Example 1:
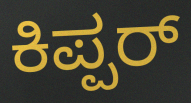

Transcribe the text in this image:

ಕಿಪ್ಪರ್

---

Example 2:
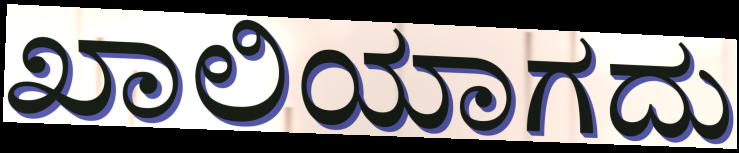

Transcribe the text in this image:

ಖಾಲಿಯಾಗದು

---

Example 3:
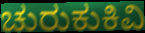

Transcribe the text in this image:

ಚುರುಕುಕಿವಿ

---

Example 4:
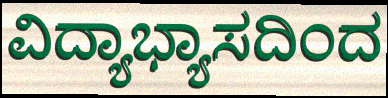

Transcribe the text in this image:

ವಿದ್ಯಾಭ್ಯಾಸದಿಂದ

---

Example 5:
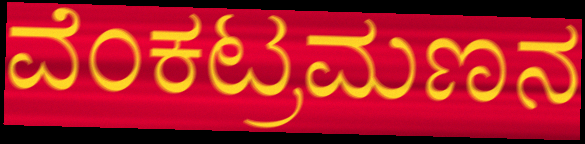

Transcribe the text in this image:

ವೆಂಕಟ್ರಮಣನ